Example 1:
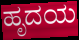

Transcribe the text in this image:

ಹೃದಯ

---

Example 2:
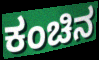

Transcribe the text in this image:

ಕಂಚಿನ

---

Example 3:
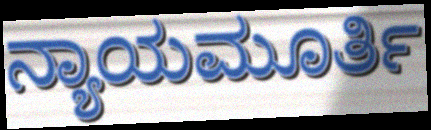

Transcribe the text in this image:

ನ್ಯಾಯಮೂರ್ತಿ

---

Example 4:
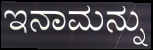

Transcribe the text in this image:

ಇನಾಮನ್ನು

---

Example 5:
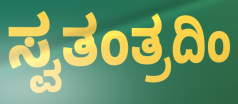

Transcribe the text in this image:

ಸ್ವತಂತ್ರದಿಂ